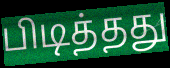
பிடித்தது